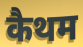
कैथम